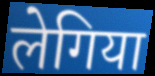
लेगिया